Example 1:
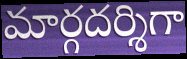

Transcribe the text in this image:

మార్గదర్శిగా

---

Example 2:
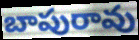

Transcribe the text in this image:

బాపురావు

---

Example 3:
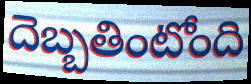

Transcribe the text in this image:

దెబ్బతింటోంది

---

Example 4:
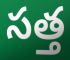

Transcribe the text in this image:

సత్త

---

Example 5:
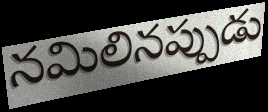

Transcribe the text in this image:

నమిలినప్పుడు